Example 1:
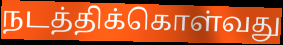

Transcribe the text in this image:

நடத்திக்கொள்வது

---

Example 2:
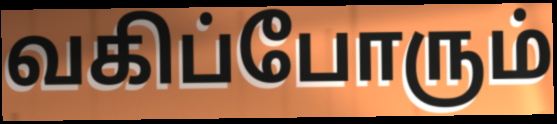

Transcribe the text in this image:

வகிப்போரும்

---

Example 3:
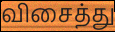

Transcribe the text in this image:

விசைத்து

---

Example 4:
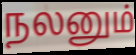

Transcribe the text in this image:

நலனும்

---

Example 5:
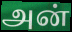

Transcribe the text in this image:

அன்